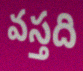
వస్తది